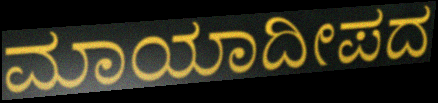
ಮಾಯಾದೀಪದ